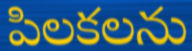
పిలకలను